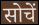
सोचें